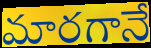
మారగానే